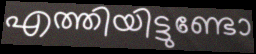
എത്തിയിട്ടുണ്ടോ